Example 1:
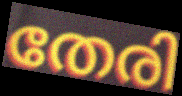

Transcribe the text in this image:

തേരി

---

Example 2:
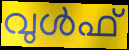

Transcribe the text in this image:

വുൾഫ്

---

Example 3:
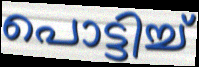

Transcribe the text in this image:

പൊട്ടിച്ച്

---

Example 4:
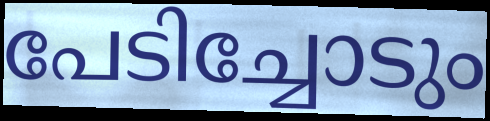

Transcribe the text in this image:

പേടിച്ചോടും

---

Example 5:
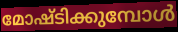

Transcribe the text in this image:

മോഷ്ടിക്കുമ്പോൾ